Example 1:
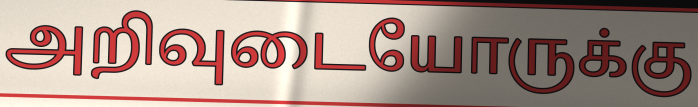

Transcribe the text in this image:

அறிவுடையோருக்கு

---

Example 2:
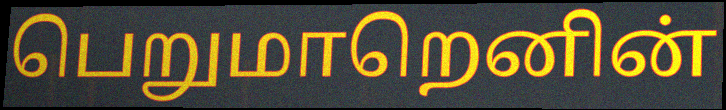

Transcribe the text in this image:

பெறுமாறெனின்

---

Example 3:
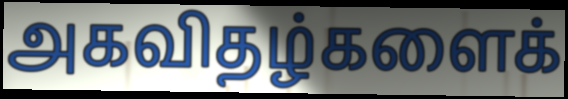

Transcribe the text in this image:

அகவிதழ்களைக்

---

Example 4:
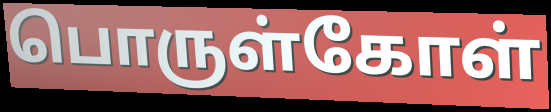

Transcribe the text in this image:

பொருள்கோள்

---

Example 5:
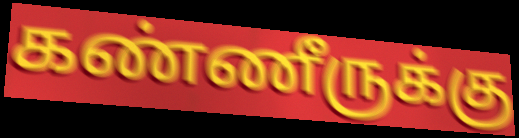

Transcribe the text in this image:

கண்ணீருக்கு